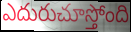
ఎదురుచూస్తోంది